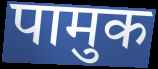
पामुक